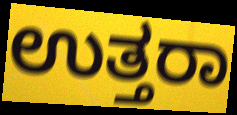
ಉತ್ತರಾ